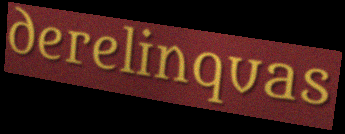
derelinquas